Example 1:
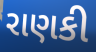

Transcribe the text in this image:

રાણકી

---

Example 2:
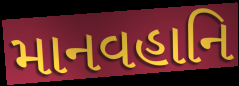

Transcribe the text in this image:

માનવહાનિ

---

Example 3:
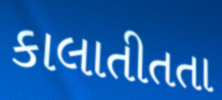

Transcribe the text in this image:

કાલાતીતતા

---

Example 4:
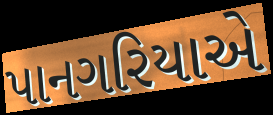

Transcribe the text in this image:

પાનગરિયાએ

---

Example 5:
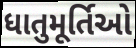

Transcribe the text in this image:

ધાતુમૂર્તિઓ